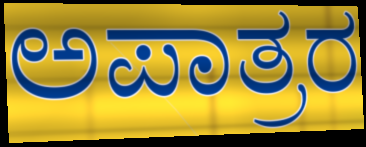
ಅಪಾತ್ರರ